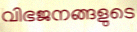
വിഭജനങ്ങളുടെ